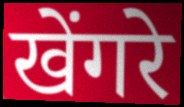
खेंगरे